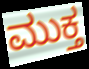
ಮುಕ್ತ